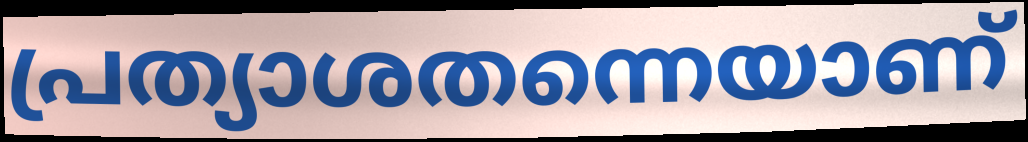
പ്രത്യാശതന്നെയാണ്